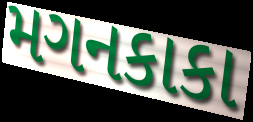
મગનકાકા